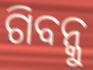
ଗିବନ୍କୁ